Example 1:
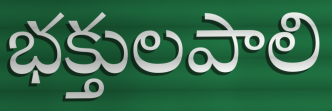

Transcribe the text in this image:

భక్తులపాలి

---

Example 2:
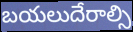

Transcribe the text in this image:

బయలుదేరాల్సి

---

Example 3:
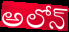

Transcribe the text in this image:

అలోన్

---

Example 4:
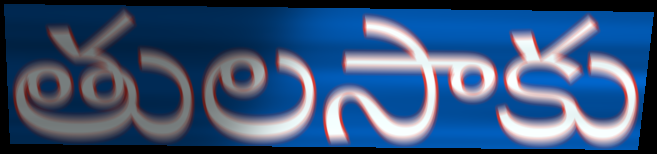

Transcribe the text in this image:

తులసాకు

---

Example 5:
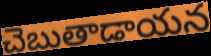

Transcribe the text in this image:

చెబుతాడాయన